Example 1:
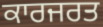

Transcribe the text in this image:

ਕਾਰਜਰਤ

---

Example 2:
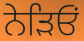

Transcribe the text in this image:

ਨੇੜਿਓਂ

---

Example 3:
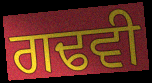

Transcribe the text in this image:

ਗਢਵੀ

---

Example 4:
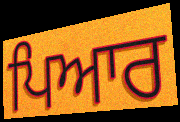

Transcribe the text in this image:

ਪਿਆਰ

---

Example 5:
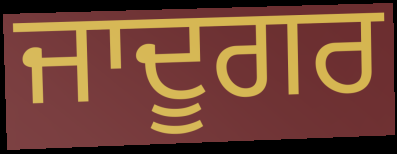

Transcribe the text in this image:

ਜਾਦੂਗਰ